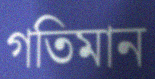
গতিমান